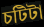
চটিটা